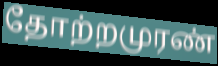
தோற்றமுரண்